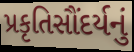
પ્રકૃતિસૌંદર્યનું